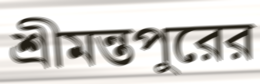
শ্রীমন্তপুরের